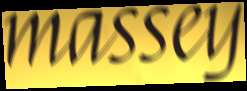
massey